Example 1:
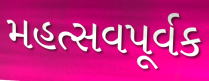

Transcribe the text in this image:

મહત્સવપૂર્વક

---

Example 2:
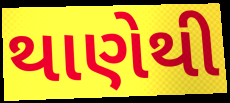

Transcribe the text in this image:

થાણેથી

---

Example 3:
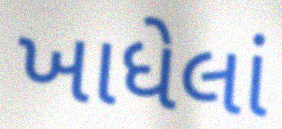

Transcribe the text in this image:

ખાધેલાં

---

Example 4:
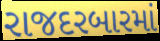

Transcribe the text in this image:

રાજદરબારમાં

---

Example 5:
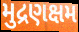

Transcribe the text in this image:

મુદ્રણક્ષમ